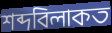
শব্দবিলাকত